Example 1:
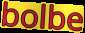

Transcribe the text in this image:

bolbe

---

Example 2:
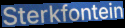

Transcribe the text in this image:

Sterkfontein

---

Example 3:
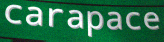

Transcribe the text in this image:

carapace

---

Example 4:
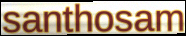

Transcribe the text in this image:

santhosam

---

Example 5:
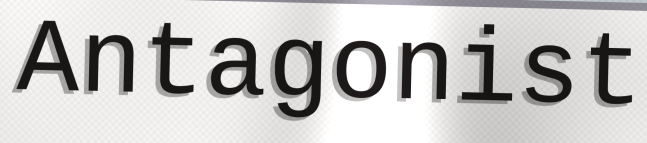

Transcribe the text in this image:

Antagonist